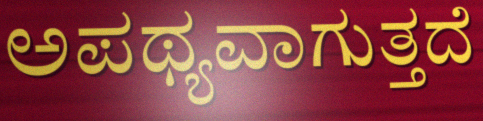
ಅಪಥ್ಯವಾಗುತ್ತದೆ